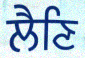
ਲੈਣਿ